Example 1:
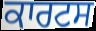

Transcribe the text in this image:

ਕਾਰਟਸ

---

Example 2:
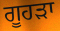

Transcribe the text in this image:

ਗੂਹੜਾ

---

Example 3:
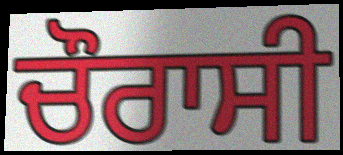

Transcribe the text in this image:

ਚੌਰਾਸੀ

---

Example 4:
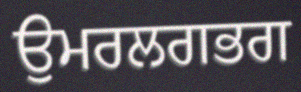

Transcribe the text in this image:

ਉੁਮਰਲਗਭਗ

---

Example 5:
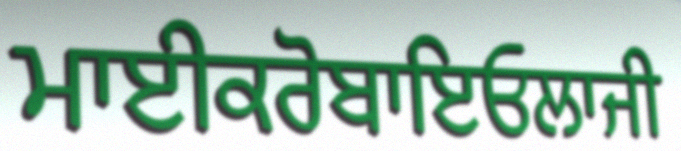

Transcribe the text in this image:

ਮਾਈਕਰੋਬਾਇਓਲਾਜੀ